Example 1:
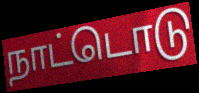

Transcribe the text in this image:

நாட்டொடு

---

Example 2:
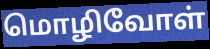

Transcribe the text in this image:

மொழிவோள்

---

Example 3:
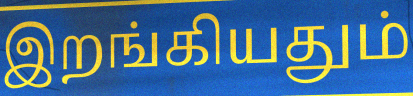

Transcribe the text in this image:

இறங்கியதும்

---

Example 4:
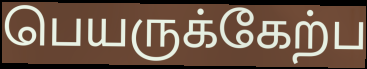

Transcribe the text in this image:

பெயருக்கேற்ப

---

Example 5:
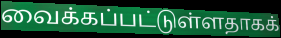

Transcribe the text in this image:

வைக்கப்பட்டுள்ளதாகக்